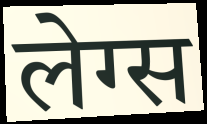
लेग्स